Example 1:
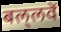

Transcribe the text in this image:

बल्लवें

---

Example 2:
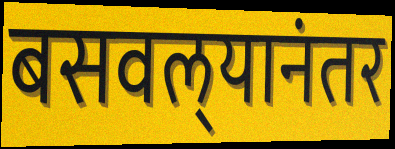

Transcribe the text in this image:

बसवल्यानंतर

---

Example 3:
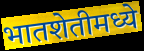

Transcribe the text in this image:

भातशेतीमध्ये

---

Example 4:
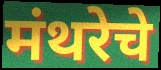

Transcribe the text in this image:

मंथरेचे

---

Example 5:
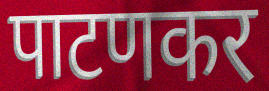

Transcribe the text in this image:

पाटणकर